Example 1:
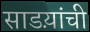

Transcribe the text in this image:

साडय़ांची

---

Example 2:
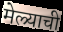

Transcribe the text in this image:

मेल्याची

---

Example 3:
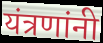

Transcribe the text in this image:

यंत्रणांनी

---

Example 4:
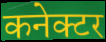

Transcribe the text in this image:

कनेक्टर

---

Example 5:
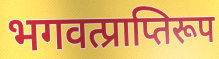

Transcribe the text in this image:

भगवत्प्राप्तिरूप